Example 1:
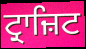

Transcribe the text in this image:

ਟ੍ਰਾਜ਼ਿਟ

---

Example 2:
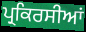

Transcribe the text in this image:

ਪ੍ਰਕਿਰਸੀਆਂ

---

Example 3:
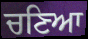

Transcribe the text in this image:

ਚਣਿਆ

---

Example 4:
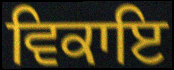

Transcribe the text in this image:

ਵਿਕਾਇ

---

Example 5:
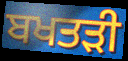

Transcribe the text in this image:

ਬਖਤੜੀ